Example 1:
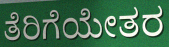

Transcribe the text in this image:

ತೆರಿಗೆಯೇತರ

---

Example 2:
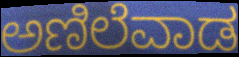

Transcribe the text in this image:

ಅಣಿಲೆವಾಡ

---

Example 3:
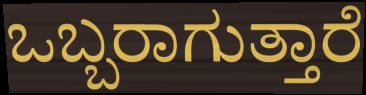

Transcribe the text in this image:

ಒಬ್ಬರಾಗುತ್ತಾರೆ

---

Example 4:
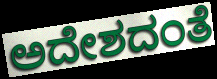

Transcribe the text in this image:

ಅದೇಶದಂತೆ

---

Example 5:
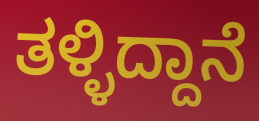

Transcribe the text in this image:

ತಳ್ಳಿದ್ದಾನೆ